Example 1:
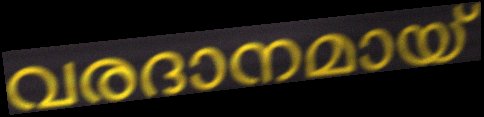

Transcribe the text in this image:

വരദാനമായ്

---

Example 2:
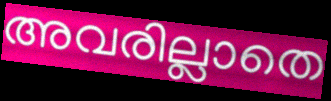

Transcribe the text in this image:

അവരില്ലാതെ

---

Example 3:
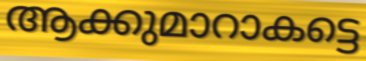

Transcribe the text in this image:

ആക്കുമാറാകട്ടെ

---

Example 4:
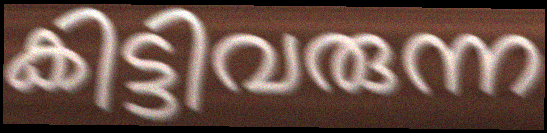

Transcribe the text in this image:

കിട്ടിവരുന്ന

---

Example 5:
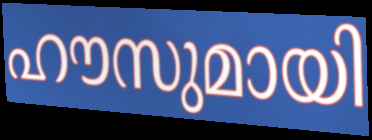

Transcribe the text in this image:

ഹൗസുമായി